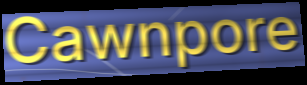
Cawnpore